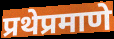
प्रथेप्रमाणे